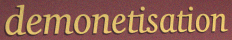
demonetisation